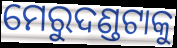
ମେରୁଦଣ୍ଡଟାକୁ